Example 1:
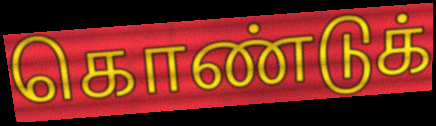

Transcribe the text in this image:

கொண்டுக்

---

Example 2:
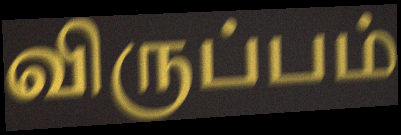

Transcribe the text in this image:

விருப்பம்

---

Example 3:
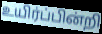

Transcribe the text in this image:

உயிர்ப்பின்றி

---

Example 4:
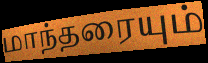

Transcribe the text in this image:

மாந்தரையும்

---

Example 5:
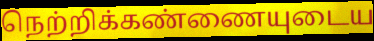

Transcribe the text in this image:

நெற்றிக்கண்ணையுடைய